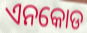
ଏନକୋଡ